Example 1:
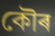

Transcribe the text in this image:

কৌৰ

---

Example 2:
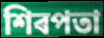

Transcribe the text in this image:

শিৰপতা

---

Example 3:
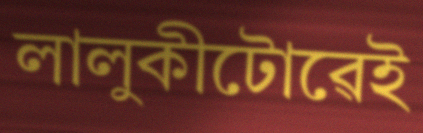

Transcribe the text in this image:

লালুকীটোৱেই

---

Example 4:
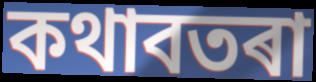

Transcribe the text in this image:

কথাবতৰা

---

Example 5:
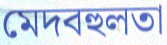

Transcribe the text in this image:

মেদবহুলতা